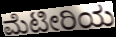
ಮೆಟೀರಿಯ